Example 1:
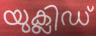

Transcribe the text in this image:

യുക്ലിഡ്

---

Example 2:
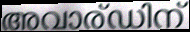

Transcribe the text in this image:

അവാര്ഡിന്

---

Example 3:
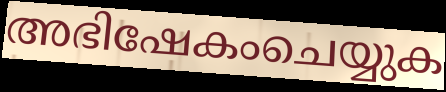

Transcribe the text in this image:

അഭിഷേകംചെയ്യുക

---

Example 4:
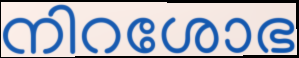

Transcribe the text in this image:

നിറശോഭ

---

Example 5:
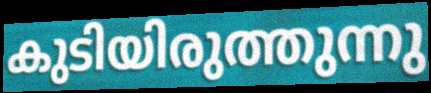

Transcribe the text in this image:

കുടിയിരുത്തുന്നു